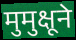
मुमुक्षूने